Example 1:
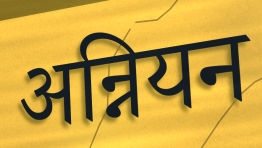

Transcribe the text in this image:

अन्नियन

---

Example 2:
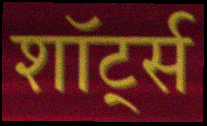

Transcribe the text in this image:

शॉर्ट्स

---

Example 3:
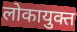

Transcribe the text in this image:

लोकायुक्त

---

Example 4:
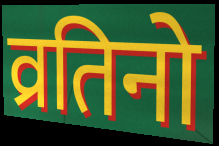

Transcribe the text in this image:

व्रतिनो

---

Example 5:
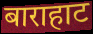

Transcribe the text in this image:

बाराहाट